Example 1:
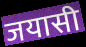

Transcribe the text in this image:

जयासी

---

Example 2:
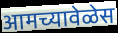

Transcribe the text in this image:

आमच्यावेळेस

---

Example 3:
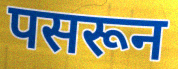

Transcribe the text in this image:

पसरून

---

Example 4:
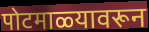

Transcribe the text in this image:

पोटमाळ्यावरून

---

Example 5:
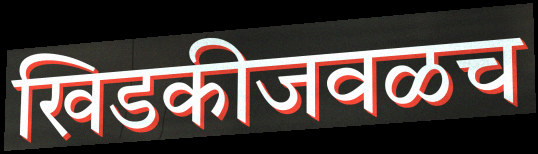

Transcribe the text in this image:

खिडकीजवळच